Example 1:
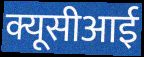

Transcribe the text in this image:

क्यूसीआई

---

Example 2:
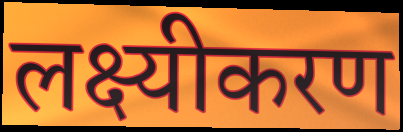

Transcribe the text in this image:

लक्ष्यीकरण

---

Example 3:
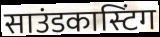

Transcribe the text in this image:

साउंडकास्टिंग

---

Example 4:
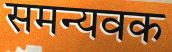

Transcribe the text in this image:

समन्यवक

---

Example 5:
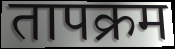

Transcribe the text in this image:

तापक्रम